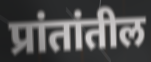
प्रांतांतील